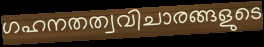
ഗഹനതത്വവിചാരങ്ങളുടെ